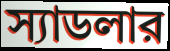
স্যাডলার